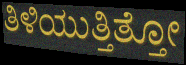
ತಿಳಿಯುತ್ತಿತ್ತೋ